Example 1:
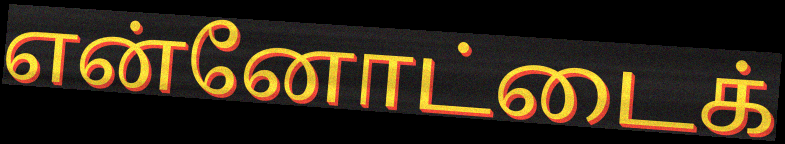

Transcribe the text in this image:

என்னோட்டைக்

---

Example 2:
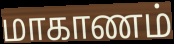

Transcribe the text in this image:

மாகாணம்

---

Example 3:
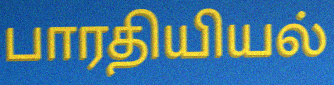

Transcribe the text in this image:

பாரதியியல்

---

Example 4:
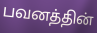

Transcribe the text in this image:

பவனத்தின்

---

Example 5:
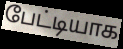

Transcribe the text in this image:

பேட்டியாக